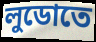
লুডোতে